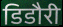
डिडौरी